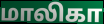
மாலிகா